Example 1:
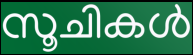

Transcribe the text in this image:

സൂചികൾ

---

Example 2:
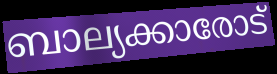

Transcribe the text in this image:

ബാല്യക്കാരോട്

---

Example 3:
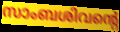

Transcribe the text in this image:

സാംബശിവന്റെ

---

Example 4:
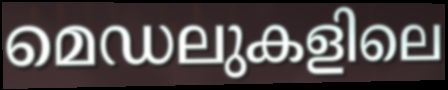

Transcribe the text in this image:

മെഡലുകളിലെ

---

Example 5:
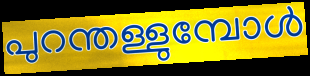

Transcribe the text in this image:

പുറന്തള്ളുമ്പോൾ